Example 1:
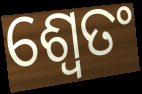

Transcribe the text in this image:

ଶ୍ଵେତଂ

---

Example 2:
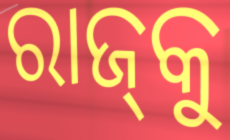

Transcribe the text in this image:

ରାଜ୍‍କୁ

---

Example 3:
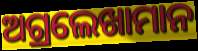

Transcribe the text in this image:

ଅଗ୍ରଲେଖାମାନ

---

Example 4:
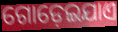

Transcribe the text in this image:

ଗୋଡ଼େଇଯାଏ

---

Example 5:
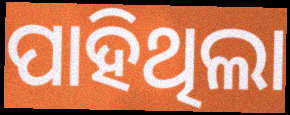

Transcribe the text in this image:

ପାହିଥିଲା